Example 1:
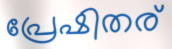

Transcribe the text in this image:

പ്രേഷിതര്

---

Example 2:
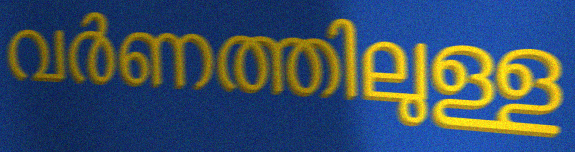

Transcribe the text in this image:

വർണത്തിലുള്ള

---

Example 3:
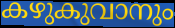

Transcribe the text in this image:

കഴുകുവാനും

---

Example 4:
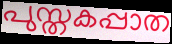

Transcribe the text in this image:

പുസ്തകപ്പാത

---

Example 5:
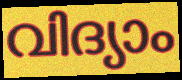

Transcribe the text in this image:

വിദ്യാം